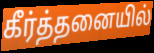
கீர்த்தனையில்